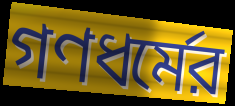
গণধর্মের